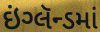
ઇંગ્લૅન્ડમાં